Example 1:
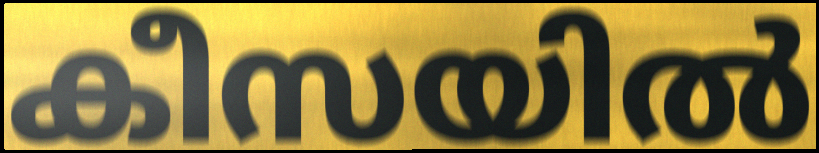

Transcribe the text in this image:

കീസയിൽ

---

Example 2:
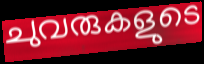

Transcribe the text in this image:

ചുവരുകളുടെ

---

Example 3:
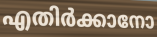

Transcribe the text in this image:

എതിർക്കാനോ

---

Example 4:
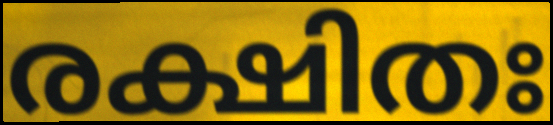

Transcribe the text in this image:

രക്ഷിതഃ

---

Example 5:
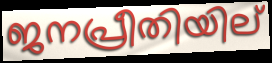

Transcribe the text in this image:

ജനപ്രീതിയില്